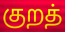
குறத்